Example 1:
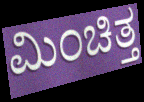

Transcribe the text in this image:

ಮಿಂಚಿತ್ತ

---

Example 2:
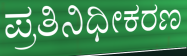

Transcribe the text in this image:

ಪ್ರತಿನಿಧೀಕರಣ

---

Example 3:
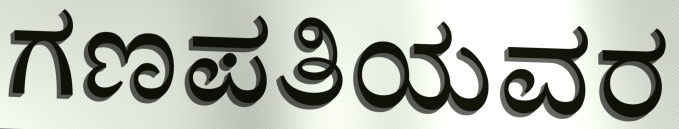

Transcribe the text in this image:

ಗಣಪತಿಯವರ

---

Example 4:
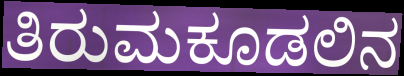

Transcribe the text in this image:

ತಿರುಮಕೂಡಲಿನ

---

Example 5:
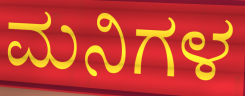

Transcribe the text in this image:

ಮನಿಗಳ